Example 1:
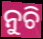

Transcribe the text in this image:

ନୁଚି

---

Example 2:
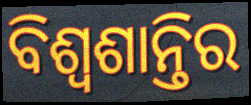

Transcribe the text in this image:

ବିଶ୍ୱଶାନ୍ତିର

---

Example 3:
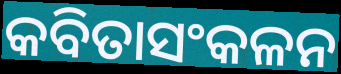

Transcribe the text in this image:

କବିତାସଂକଳନ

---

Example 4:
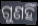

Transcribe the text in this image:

ଗୁଣହିଁ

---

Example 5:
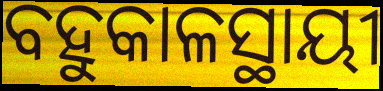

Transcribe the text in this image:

ବହୁକାଳସ୍ଥାୟୀ